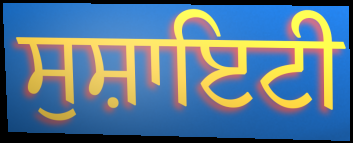
ਸੁਸ਼ਾਇਟੀ